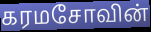
கரமசோவின்